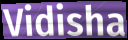
Vidisha